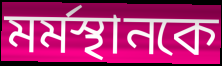
মর্মস্থানকে